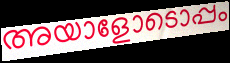
അയാളോടൊപ്പം